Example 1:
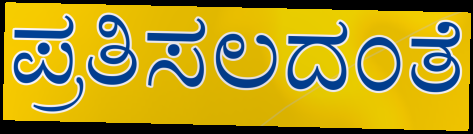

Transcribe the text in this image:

ಪ್ರತಿಸಲದಂತೆ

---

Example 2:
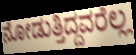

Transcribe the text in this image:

ನೋಡುತ್ತಿದ್ದವರೆಲ್ಲ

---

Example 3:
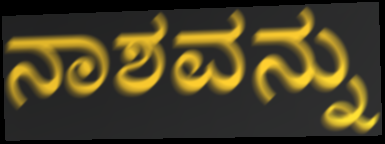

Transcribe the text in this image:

ನಾಶವನ್ನು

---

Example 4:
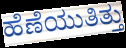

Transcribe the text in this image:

ಹೆಣೆಯುತಿತ್ತು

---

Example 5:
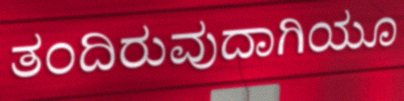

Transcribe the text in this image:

ತಂದಿರುವುದಾಗಿಯೂ